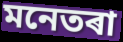
মনেতৰা